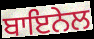
ਬਾਇਨੇਲ